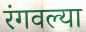
रंगवल्या